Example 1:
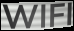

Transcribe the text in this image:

WIFI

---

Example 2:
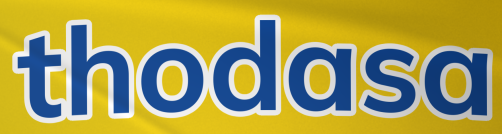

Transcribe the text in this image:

thodasa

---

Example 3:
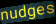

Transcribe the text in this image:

nudges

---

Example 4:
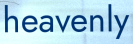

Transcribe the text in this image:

heavenly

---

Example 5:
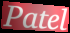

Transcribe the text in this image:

Patel